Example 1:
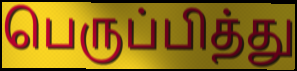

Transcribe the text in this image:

பெருப்பித்து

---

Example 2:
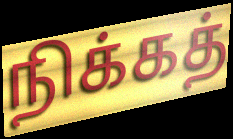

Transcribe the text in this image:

நிக்கத்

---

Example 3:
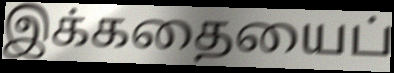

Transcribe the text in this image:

இக்கதையைப்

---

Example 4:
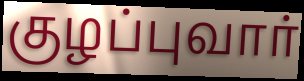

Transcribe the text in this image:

குழப்புவார்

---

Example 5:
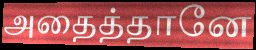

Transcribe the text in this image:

அதைத்தானே